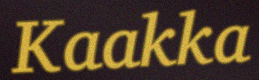
Kaakka